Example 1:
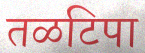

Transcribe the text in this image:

तळटिपा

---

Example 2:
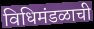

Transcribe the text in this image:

विधिमंडळाची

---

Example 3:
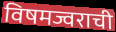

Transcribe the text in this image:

विषमज्वराची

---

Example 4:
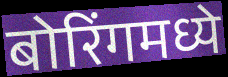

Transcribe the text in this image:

बोरिंगमध्ये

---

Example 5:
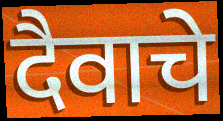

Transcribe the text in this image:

दैवाचे